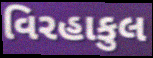
વિરહાકુલ